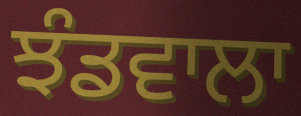
ਝੰਡਵਾਲਾ